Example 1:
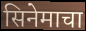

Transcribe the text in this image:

सिनेमाचा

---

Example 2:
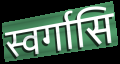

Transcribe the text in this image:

स्वर्गासि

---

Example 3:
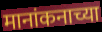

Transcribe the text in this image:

मानांकनाच्या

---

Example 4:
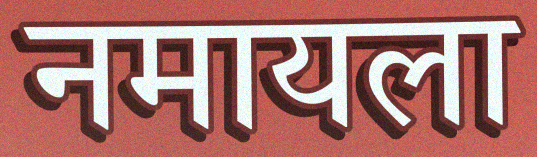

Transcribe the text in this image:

नमायला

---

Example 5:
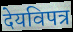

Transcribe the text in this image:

देयविपत्र